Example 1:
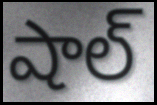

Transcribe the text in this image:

షాల్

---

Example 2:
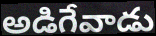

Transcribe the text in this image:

అడిగేవాడు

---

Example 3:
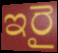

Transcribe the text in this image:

ఇరై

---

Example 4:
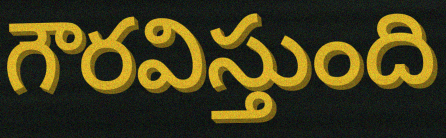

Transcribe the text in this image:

గౌరవిస్తుంది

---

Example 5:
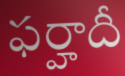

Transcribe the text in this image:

ఫర్హాదీ